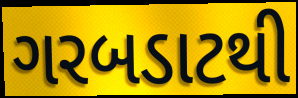
ગરબડાટથી